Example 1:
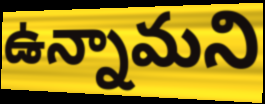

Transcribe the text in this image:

ఉన్నామని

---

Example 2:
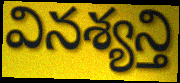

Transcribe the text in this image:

వినశ్యన్తి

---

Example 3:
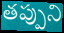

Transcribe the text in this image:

తప్పుని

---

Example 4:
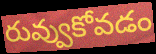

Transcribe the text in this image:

రువ్వుకోవడం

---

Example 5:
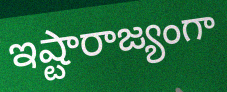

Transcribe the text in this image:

ఇష్టారాజ్యంగా